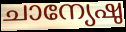
ചാന്യേഷു